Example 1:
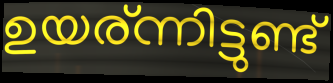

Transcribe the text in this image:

ഉയര്ന്നിട്ടുണ്ട്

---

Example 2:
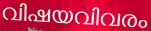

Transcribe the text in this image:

വിഷയവിവരം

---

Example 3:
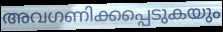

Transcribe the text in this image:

അവഗണിക്കപ്പെടുകയും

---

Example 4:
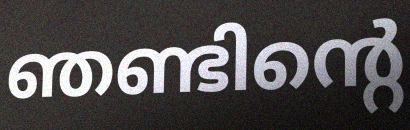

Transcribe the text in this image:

ഞണ്ടിന്റെ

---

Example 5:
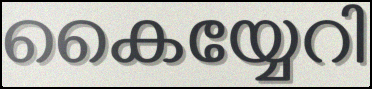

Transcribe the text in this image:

കൈയ്യേറി